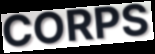
CORPS